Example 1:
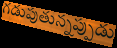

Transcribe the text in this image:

గడుపుతున్నప్పుడు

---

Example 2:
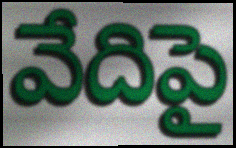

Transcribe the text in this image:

వేదిపై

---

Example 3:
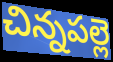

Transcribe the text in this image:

చిన్నపల్లె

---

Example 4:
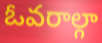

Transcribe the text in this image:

ఓవరాల్గా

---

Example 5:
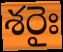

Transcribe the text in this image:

శరైః